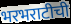
भरभराटीची